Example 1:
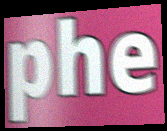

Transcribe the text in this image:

phe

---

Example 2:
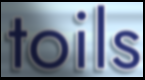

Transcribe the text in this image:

toils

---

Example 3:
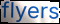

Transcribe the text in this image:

flyers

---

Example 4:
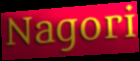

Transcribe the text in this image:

Nagori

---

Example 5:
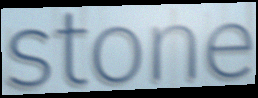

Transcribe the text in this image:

stone